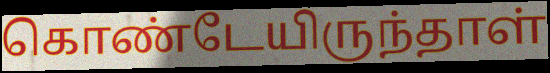
கொண்டேயிருந்தாள்